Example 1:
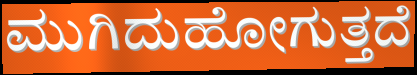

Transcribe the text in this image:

ಮುಗಿದುಹೋಗುತ್ತದೆ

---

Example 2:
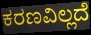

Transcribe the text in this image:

ಕರಣವಿಲ್ಲದೆ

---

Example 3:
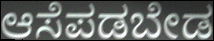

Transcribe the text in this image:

ಆಸೆಪಡಬೇಡ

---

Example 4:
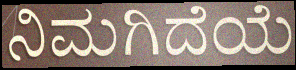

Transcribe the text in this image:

ನಿಮಗಿದೆಯೆ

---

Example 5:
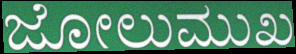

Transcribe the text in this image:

ಜೋಲುಮುಖ